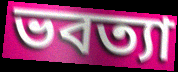
ভবত্যা